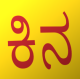
ಕಿನ